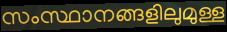
സംസ്ഥാനങ്ങളിലുമുള്ള